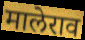
मालेराव